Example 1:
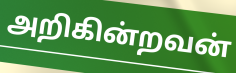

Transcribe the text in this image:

அறிகின்றவன்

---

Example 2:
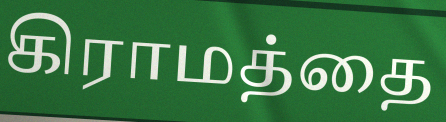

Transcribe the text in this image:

கிராமத்தை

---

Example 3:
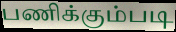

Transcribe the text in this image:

பணிக்கும்படி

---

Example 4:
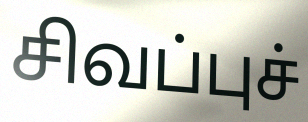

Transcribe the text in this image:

சிவப்புச்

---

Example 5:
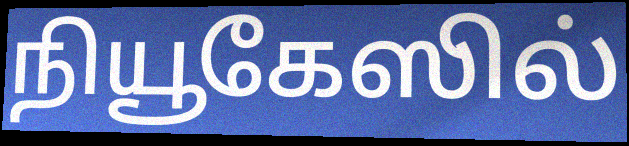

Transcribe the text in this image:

நியூகேஸில்